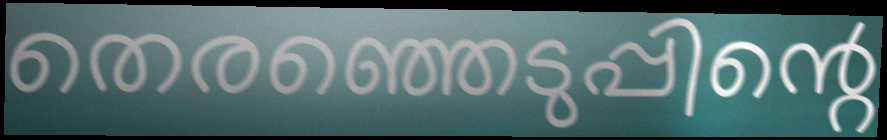
തെരഞ്ഞെടുപ്പിന്റെ